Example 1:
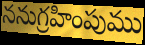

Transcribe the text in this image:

ననుగ్రహింపుము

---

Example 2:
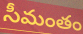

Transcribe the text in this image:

సీమంతం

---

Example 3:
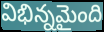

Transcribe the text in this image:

విభిన్నమైంది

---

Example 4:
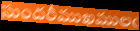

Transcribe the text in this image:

సుందరీముఖములఁ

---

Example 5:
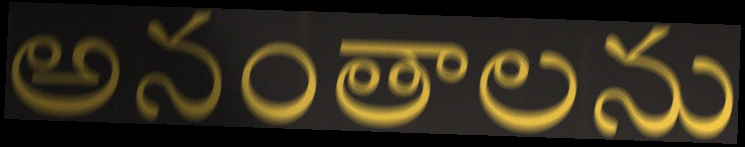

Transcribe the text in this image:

అనంతాలను